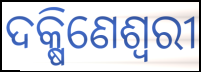
ଦକ୍ଷିଣେଶ୍ଵରୀ